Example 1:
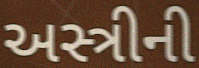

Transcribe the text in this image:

અસ્ત્રીની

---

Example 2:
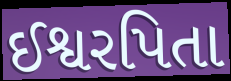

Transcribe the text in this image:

ઈશ્વરપિતા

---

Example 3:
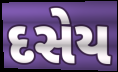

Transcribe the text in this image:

દસેય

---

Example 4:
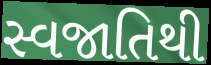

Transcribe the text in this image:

સ્વજાતિથી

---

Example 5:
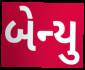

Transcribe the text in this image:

બેન્યુ